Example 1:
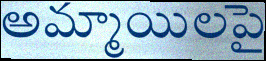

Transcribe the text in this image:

అమ్మాయిలపై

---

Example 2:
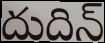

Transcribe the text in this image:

దుదిన్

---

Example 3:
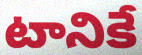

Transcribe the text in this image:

టానికే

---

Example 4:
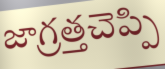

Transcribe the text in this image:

జాగ్రత్తచెప్పి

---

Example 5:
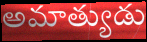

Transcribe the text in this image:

అమాత్యుడు